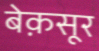
बेक़सूर